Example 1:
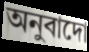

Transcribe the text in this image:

অনুবাদো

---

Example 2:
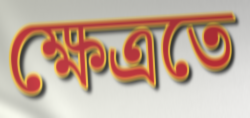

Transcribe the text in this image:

ক্ষেত্ৰতে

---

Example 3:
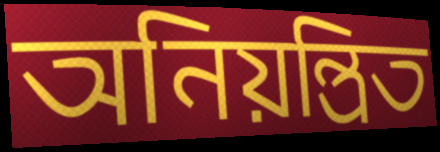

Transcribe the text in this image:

অনিয়ন্ত্ৰিত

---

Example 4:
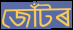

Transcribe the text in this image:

জোঁটৰ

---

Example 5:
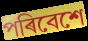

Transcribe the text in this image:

পৰিবেশে